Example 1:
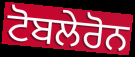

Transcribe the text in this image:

ਟੋਬਲੇਰੋਨ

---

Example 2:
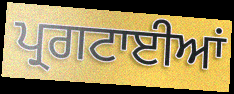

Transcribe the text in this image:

ਪ੍ਰਗਟਾਈਆਂ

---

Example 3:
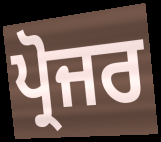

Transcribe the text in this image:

ਪ੍ਰੋਜਰ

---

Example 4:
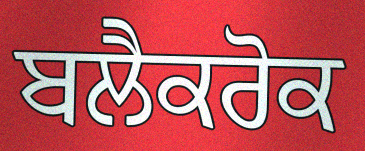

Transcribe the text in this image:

ਬਲੈਕਰੋਕ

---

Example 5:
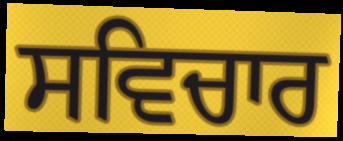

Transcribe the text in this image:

ਸਵਿਚਾਰ